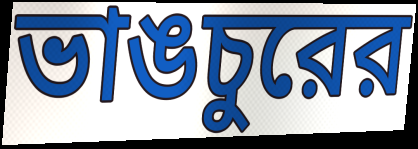
ভাঙচুরের